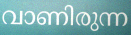
വാണിരുന്ന